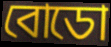
বোডো